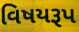
વિષયરૂપ